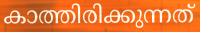
കാത്തിരിക്കുന്നത്